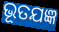
ଭୂତଯଜ୍ଞ